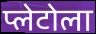
प्लेटोला